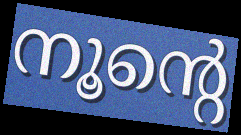
നൂന്റെ